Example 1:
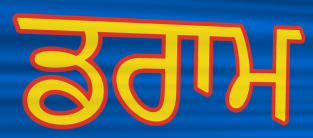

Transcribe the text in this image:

ਡਰਾਮ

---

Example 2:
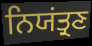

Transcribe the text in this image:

ਨਿਯਂਤ੍ਰਣ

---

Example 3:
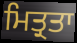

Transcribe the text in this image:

ਮਿਤ੍ਰਤਾ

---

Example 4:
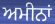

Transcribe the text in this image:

ਅਮੀਨਾਂ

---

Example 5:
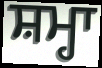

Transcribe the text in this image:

ਸ਼ਮ੍ਹਾ